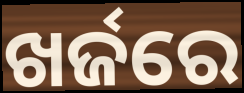
ଖର୍ଜରେ